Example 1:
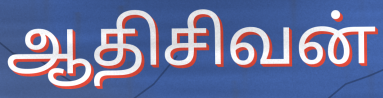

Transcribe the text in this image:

ஆதிசிவன்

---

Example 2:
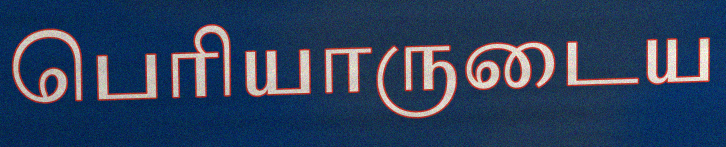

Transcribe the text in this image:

பெரியாருடைய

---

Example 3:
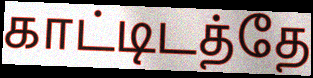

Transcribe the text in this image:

காட்டிடத்தே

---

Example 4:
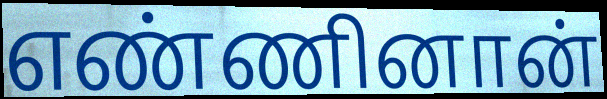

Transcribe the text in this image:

எண்ணினான்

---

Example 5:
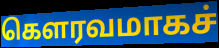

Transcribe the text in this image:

கௌரவமாகச்